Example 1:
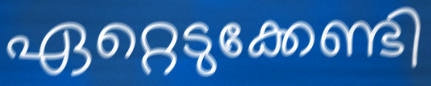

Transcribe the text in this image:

ഏറ്റെടുക്കേണ്ടി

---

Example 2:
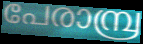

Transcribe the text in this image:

പേരാമ്പ്ര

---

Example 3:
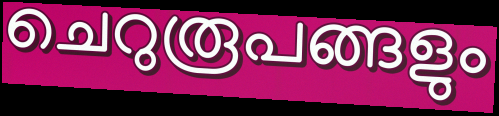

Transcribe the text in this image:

ചെറുരൂപങ്ങളും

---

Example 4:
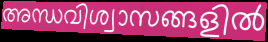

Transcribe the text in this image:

അന്ധവിശ്വാസങ്ങളിൽ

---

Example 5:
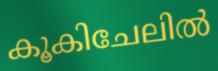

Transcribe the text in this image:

കൂകിചേലിൽ